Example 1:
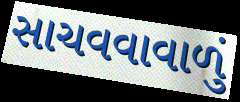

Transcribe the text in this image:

સાચવવાવાળું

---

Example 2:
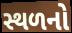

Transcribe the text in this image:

સ્થળનો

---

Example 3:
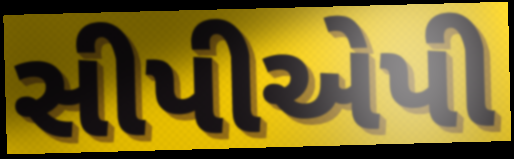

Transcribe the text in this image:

સીપીએપી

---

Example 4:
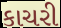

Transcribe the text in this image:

કાચરી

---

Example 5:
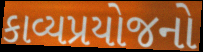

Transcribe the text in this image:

કાવ્યપ્રયોજનો